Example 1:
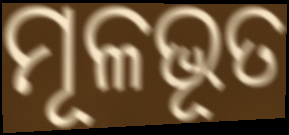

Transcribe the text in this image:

ମୂଳଭୂତ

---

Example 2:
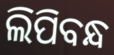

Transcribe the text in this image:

ଲିପିବନ୍ଧ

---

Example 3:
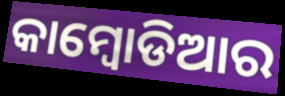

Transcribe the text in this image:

କାମ୍ବୋଡିଆର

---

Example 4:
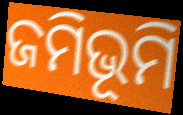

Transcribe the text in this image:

ଜମିଭୂମି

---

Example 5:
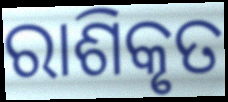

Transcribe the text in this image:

ରାଶିକୃତ